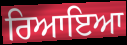
ਰਿਆਇਆ